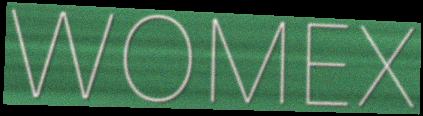
WOMEX